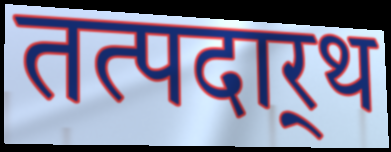
तत्पदार्थ